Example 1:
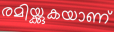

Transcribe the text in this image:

രമിയ്ക്കുകയാണ്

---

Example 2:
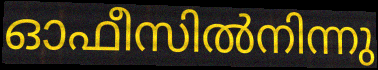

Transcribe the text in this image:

ഓഫീസിൽനിന്നു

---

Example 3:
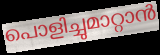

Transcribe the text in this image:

പൊളിച്ചുമാറ്റാൻ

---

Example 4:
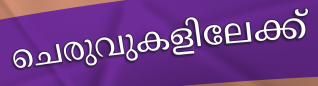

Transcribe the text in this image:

ചെരുവുകളിലേക്ക്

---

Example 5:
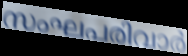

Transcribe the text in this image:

സംഘപരിവാർ